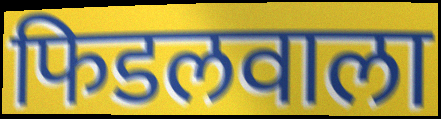
फिडलवाला